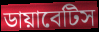
ডায়াবেটিস